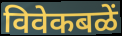
विवेकबळें